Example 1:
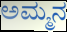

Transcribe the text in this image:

ಅಮ್ಮನ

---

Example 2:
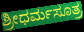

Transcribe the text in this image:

ಶ್ರೀಧರ್ಮಸೂತ್ರ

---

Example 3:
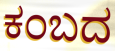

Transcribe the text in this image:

ಕಂಬದ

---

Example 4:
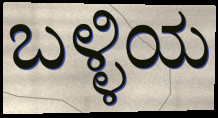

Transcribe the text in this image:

ಬಳ್ಳಿಯ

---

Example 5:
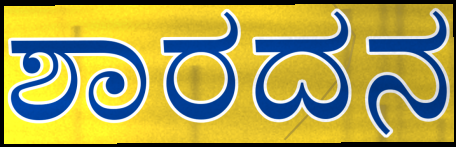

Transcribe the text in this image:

ಶಾರದನ